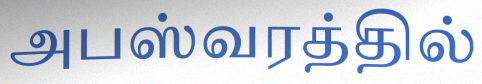
அபஸ்வரத்தில்